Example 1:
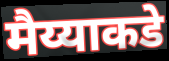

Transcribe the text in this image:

मैय्याकडे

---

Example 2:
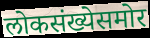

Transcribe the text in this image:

लोकसंख्येसमोर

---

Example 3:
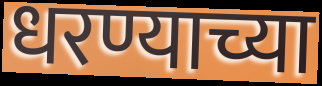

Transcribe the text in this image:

धरण्याच्या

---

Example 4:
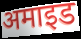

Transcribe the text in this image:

अमाइड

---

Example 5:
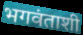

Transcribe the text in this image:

भगवंताशी